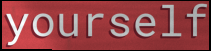
yourself